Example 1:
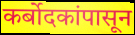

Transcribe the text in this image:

कर्बोदकांपासून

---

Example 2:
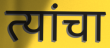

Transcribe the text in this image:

त्‍यांचा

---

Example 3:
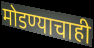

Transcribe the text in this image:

मोडण्याचाही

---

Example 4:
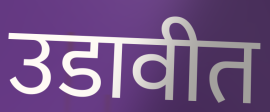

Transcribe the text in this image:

उडावीत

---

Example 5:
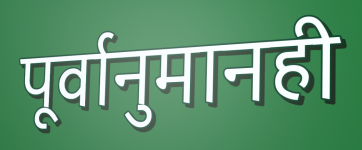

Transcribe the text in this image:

पूर्वानुमानही